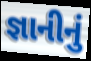
જ્ઞાનીનું